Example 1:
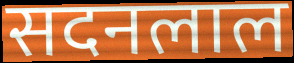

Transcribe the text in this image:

सदनलाल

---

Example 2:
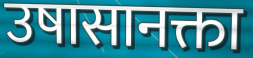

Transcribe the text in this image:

उषासानक्ता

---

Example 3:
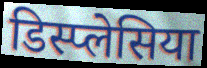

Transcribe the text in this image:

डिस्प्लेसिया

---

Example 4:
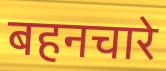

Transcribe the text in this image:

बहनचारे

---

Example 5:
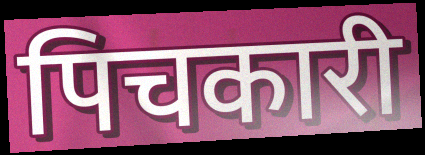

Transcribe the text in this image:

पिचकारी